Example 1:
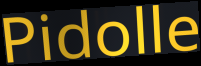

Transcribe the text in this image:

Pidolle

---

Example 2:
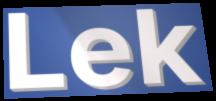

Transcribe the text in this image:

Lek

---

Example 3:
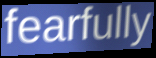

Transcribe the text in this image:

fearfully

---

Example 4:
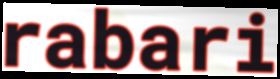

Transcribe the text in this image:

rabari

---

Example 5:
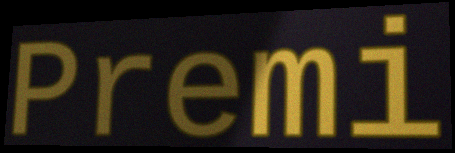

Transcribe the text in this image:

Premi